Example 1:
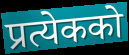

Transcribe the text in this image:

प्रत्येकको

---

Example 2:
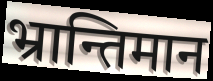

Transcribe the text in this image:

भ्रान्तिमान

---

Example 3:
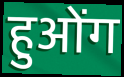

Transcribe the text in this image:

हुओंग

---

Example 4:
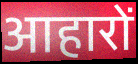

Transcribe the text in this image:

आहारों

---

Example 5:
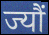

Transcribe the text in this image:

ज्यौं